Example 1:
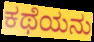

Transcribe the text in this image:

ಕಥೆಯನು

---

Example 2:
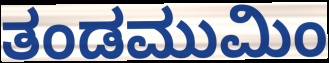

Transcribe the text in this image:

ತಂಡಮುಮಿಂ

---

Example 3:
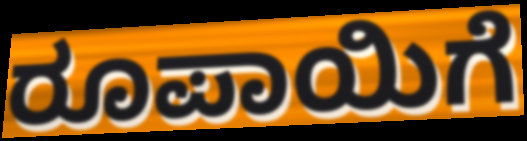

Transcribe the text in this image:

ರೂಪಾಯಿಗೆ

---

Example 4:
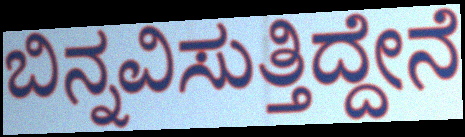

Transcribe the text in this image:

ಬಿನ್ನವಿಸುತ್ತಿದ್ದೇನೆ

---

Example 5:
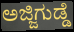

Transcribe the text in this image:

ಅಜ್ಜಿಗುಡ್ಡೆ